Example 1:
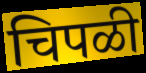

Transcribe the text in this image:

चिपळी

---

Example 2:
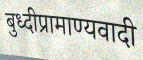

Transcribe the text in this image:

बुध्दीप्रामाण्यवादी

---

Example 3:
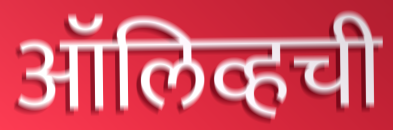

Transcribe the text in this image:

ऑलिव्हची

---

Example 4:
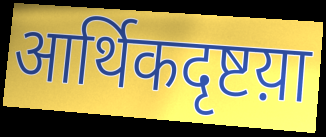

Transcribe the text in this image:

आर्थिकदृष्टय़ा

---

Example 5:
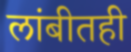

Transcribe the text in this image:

लांबीतही